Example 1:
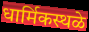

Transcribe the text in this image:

धार्मिकस्थळे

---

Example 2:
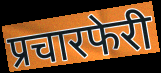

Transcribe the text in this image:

प्रचारफेरी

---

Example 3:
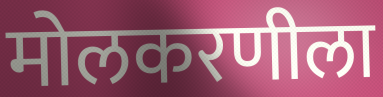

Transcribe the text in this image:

मोलकरणीला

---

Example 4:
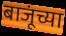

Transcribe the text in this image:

बाजूंच्या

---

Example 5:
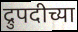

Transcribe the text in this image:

द्रुपदीच्या